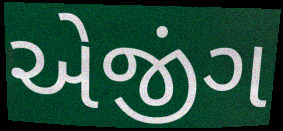
એજીંગ